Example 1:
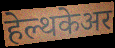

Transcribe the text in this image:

हेल्थकेअर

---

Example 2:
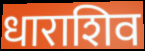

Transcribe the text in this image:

धाराशिव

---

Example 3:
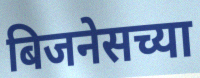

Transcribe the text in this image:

बिजनेसच्या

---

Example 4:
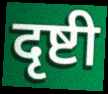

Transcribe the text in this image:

दृष्टी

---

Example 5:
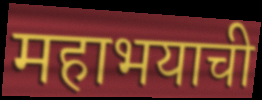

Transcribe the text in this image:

महाभयाची